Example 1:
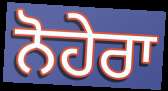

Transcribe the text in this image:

ਨੋਹੇਰਾ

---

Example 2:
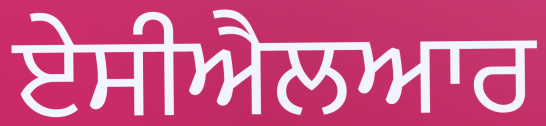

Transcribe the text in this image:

ਏਸੀਐਲਆਰ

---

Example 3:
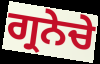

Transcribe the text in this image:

ਗ੍ਰਨੇਚੇ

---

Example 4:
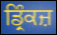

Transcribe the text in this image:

ਡ੍ਰਿੰਕਜ਼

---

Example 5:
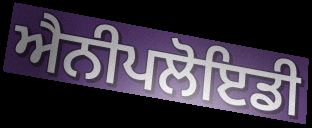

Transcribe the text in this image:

ਐਨੀਪਲੋਇਡੀ